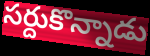
సర్దుకొన్నాడు